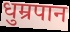
धुम्रपान